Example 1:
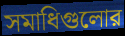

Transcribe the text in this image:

সমাধিগুলোর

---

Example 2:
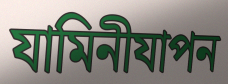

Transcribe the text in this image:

যামিনীযাপন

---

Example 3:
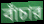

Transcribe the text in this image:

বাঁচার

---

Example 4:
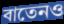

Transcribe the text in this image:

বাতেনও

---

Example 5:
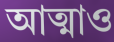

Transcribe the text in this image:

আত্মাও